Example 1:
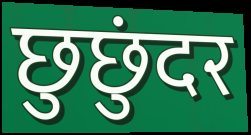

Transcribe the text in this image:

छुछुंदर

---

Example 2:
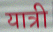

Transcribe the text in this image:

यात्री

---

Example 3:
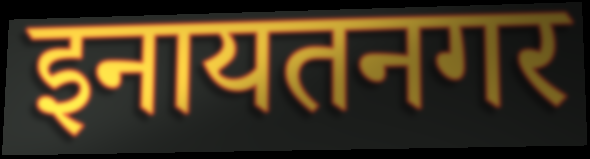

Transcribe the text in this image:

इनायतनगर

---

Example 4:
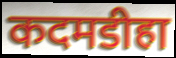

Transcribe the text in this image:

कदमडीहा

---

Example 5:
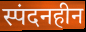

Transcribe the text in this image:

स्पंदनहीन